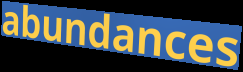
abundances